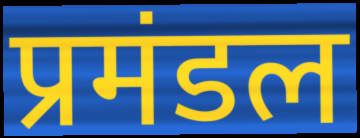
प्रमंडल